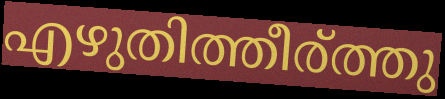
എഴുതിത്തീര്ത്തു